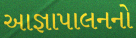
આજ્ઞાપાલનનો